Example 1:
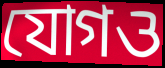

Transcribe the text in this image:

যোগও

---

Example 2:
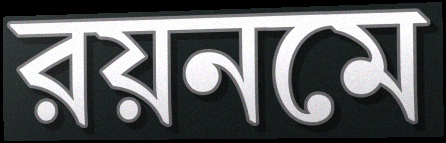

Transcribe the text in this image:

রয়নমে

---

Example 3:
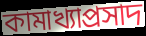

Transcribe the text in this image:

কামাখ্যাপ্রসাদ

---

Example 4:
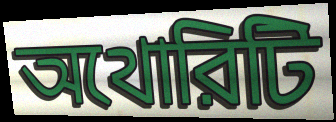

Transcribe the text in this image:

অথোরিটি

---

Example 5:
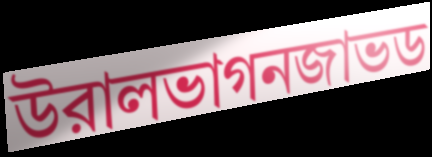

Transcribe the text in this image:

উরালভাগনজাভড